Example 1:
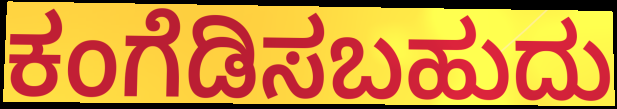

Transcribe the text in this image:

ಕಂಗೆಡಿಸಬಹುದು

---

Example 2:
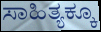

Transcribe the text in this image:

ಸಾಹಿತ್ಯಕ್ಕೂ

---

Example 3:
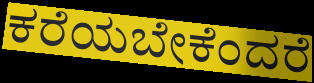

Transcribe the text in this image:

ಕರೆಯಬೇಕೆಂದರೆ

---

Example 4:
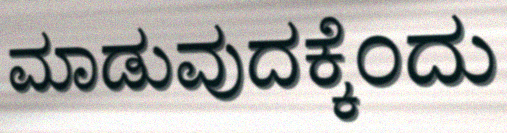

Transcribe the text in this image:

ಮಾಡುವುದಕ್ಕೆಂದು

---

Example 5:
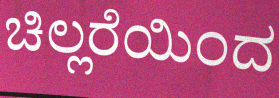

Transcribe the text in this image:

ಚಿಲ್ಲರೆಯಿಂದ